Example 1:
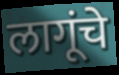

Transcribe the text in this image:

लागूंचे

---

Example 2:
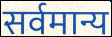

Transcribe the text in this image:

सर्वमान्य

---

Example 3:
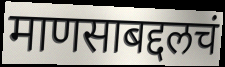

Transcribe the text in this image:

माणसाबद्दलचं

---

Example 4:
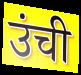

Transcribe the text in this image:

उंची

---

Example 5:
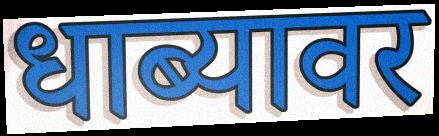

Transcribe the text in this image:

धाब्यावर